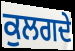
ਕੁਲਗਦੇ